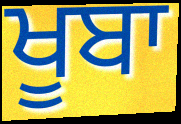
ਖੂਬਾ